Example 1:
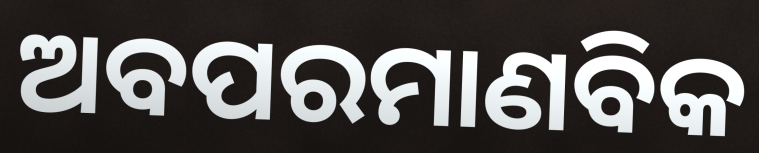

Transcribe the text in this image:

ଅବପରମାଣବିକ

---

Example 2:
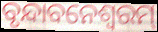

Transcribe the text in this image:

ବୃନ୍ଦାବନେଶ୍ୱରମ୍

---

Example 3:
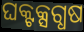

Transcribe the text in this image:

ଘକ୍ଟକ୍ସଗ୍ଧଷ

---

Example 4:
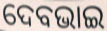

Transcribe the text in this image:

ଦେବଭାଇ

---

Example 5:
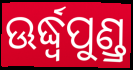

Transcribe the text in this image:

ଊର୍ଦ୍ଧ୍ୱପୁଣ୍ଡ୍ର